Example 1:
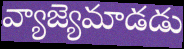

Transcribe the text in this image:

వ్యాజ్యెమాడడు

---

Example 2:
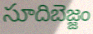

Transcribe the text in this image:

సూదిబెజ్జం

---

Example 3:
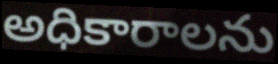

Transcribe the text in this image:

అధికారాలను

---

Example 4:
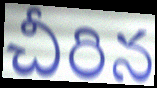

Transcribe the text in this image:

చీరిన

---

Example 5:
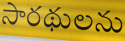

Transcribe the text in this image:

సారథులను